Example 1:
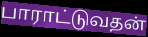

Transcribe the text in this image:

பாராட்டுவதன்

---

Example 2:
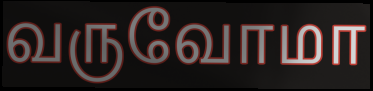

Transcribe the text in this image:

வருவோமா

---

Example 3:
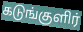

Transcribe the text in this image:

கடுங்குளிர்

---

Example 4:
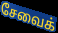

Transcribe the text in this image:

சேவைக்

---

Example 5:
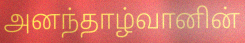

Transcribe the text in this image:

அனந்தாழ்வானின்